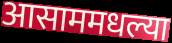
आसाममधल्या